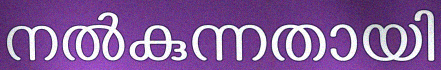
നൽകുന്നതായി